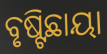
ବୃଷ୍ଟିଛାୟା